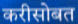
करीसोबत